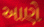
આણે